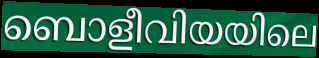
ബൊളീവിയയിലെ